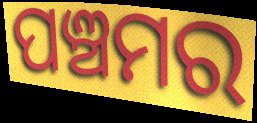
ପଞ୍ଚମର